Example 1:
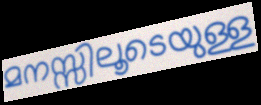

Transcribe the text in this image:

മനസ്സിലൂടെയുള്ള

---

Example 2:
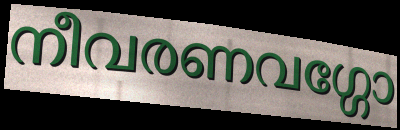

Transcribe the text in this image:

നീവരണവഗ്ഗോ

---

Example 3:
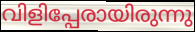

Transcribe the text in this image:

വിളിപ്പേരായിരുന്നു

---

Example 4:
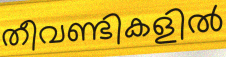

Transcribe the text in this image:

തീവണ്ടികളിൽ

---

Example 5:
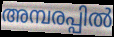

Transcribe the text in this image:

അമ്പരപ്പിൽ